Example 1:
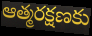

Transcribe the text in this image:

ఆత్మరక్షణకు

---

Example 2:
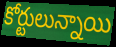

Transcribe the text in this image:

కోర్టులున్నాయి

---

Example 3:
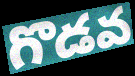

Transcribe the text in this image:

గొడవ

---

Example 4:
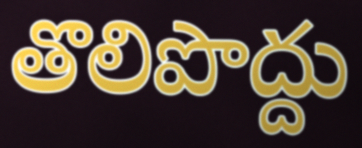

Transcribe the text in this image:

తొలిపొద్దు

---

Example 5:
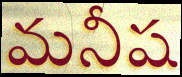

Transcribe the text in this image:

మనీష